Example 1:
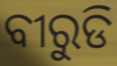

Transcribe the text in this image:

ବୀରୁଡି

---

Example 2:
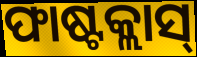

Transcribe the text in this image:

ଫାଷ୍ଟକ୍ଲାସ୍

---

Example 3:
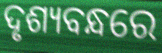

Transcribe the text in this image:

ଦୃଶ୍ୟବନ୍ଧରେ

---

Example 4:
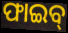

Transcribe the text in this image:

ଫାଇବ୍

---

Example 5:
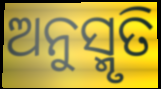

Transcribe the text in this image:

ଅନୁସ୍ମୃତି